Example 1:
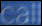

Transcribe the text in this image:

call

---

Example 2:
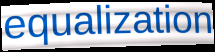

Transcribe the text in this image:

equalization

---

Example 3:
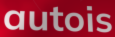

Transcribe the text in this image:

autois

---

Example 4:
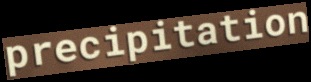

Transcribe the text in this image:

precipitation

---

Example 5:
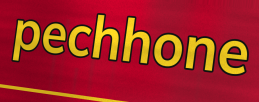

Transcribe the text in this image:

pechhone